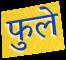
फुले